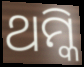
ଥମ୍କି